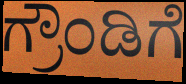
ಗ್ರೌಂಡಿಗೆ